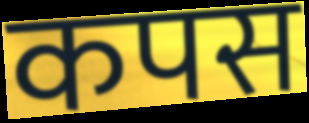
कपस